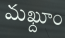
మఖ్దూం